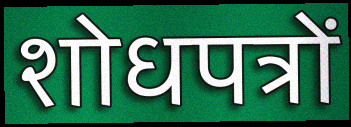
शोधपत्रों